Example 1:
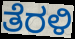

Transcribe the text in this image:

ತೆರಳಿ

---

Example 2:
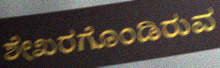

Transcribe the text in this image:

ಶೇಖರಗೊಂಡಿರುವ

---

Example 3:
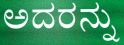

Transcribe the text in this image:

ಅದರನ್ನು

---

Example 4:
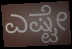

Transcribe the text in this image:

ಎಷ್ಟೇ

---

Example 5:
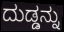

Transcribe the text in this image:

ದುಡ್ಡನ್ನು